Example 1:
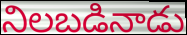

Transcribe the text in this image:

నిలబడినాడు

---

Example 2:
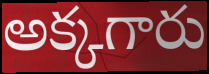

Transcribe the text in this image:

అక్కగారు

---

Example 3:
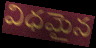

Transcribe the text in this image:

విధమైన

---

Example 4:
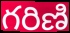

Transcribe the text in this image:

గరిణి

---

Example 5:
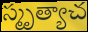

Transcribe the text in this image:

స్మృత్యాచ